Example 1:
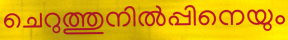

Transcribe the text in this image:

ചെറുത്തുനിൽപ്പിനെയും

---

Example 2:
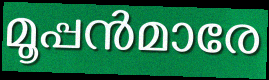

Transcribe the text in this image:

മൂപ്പൻമാരേ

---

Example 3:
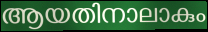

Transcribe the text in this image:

ആയതിനാലാകും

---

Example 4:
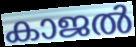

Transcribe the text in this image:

കാജൽ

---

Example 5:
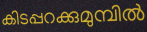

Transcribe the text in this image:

കിടപ്പറക്കുമുമ്പിൽ